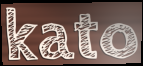
kato